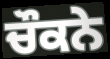
ਚੌਕਨੇ